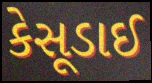
કેસૂડાઈ